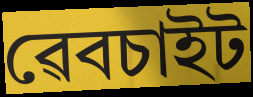
ৱেবচাইট